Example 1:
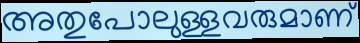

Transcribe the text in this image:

അതുപോലുള്ളവരുമാണ്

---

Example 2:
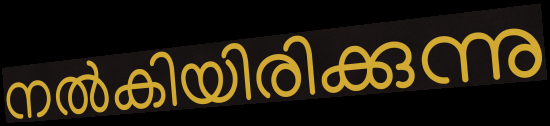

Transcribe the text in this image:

നൽകിയിരിക്കുന്നു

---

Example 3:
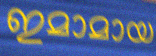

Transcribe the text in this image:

ഇമാമായ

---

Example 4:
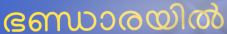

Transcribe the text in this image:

ഭണ്ഡാരയിൽ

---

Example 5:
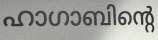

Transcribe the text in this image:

ഹാഗാബിന്റെ